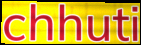
chhuti